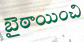
బైఠాయించి